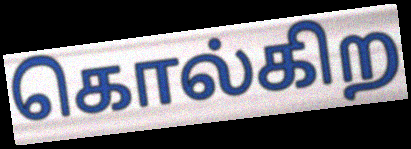
கொல்கிற